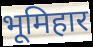
भूमिहार